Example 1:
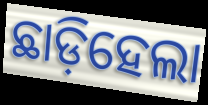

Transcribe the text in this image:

ଛାଡ଼ିହେଲା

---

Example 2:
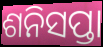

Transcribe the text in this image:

ଶନିସପ୍ତା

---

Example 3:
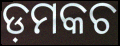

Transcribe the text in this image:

ଡ଼ମକଚ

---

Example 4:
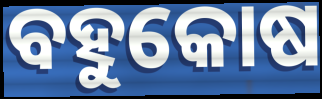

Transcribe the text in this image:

ବହୁକୋଷ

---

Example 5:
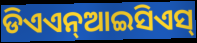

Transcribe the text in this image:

ଡିଏଏନ୍ଆଇସିଏସ୍